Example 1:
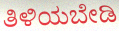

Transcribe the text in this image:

ತಿಳಿಯಬೇಡಿ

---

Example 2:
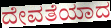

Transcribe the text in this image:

ದೇವತೆಯಾದ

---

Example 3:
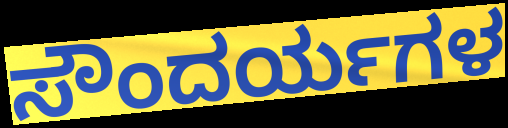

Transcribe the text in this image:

ಸೌಂದರ್ಯಗಳ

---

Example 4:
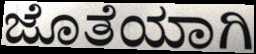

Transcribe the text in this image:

ಜೊತೆಯಾಗಿ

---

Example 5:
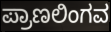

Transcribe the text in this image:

ಪ್ರಾಣಲಿಂಗವ